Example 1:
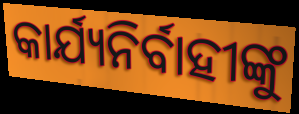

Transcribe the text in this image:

କାର୍ଯ୍ୟନିର୍ବାହୀଙ୍କୁ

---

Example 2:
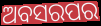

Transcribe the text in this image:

ଅବସରପର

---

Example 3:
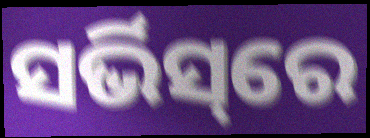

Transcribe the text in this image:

ସର୍ଭିସ୍‌ରେ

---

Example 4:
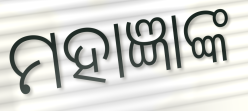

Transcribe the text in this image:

ମହାଜ୍ଞାଙ୍କ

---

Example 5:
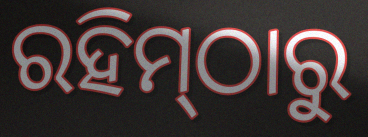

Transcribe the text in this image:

ରହିମ୍‌ଠାରୁ